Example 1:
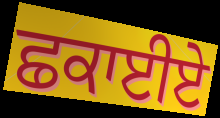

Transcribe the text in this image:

ਛਕਾਈਏ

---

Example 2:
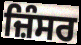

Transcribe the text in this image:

ਜ਼ਿੰਸਰ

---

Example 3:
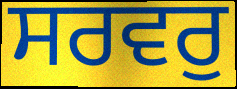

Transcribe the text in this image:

ਸਰਵਰੁ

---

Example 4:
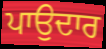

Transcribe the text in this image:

ਪਾਉਦਾਰ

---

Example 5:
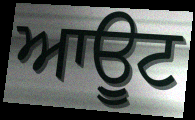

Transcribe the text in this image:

ਆਉੂਟ